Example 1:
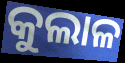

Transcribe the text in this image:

କୁଲାଳ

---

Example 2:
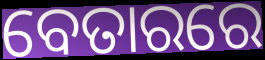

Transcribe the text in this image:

ବେତାରରେ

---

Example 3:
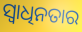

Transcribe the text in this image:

ସ୍ୱାଧିନତାର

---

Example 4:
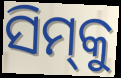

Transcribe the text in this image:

ସିମ୍‌କୁ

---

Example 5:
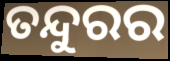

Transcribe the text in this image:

ତନ୍ଦୁରର